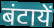
बंटायें